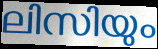
ലിസിയും